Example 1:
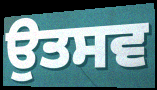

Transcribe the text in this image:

ਉਤਸਵ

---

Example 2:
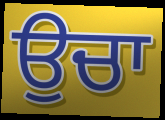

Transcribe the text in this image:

ਉਚਾ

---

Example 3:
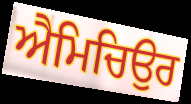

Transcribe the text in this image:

ਐਮਿਚਿਉਰ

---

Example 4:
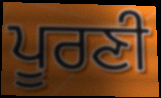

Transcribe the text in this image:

ਪੂਰਣੀ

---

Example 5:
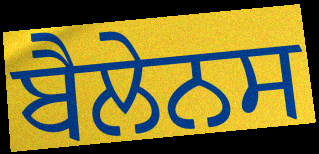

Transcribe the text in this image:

ਬੈਲੇਨਸ